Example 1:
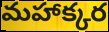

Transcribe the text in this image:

మహాక్కర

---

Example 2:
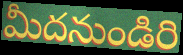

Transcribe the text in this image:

మీదనుండిరి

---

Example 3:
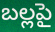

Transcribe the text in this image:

బల్లపై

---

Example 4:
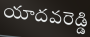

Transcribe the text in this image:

యాదవరెడ్డి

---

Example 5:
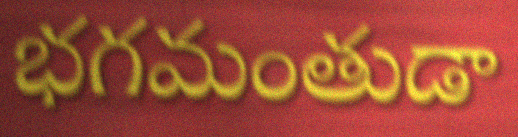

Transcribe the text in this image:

భగమంతుడా